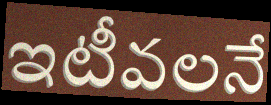
ఇటీవలనే